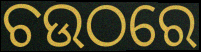
ଚଉଠରେ